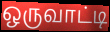
ஒருவாட்டி